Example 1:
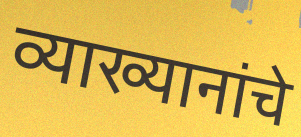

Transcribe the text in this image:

व्याख्यानांचे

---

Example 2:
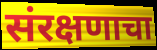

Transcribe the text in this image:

संरक्षणाचा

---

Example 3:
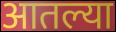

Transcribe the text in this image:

आतल्या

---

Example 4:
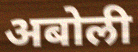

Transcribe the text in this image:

अबोली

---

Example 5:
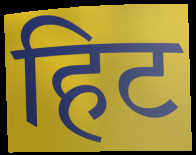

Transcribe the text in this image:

हिट